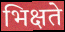
भिक्षते